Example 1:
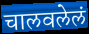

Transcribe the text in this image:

चालवलेलं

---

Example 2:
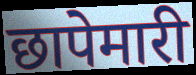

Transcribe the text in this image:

छापेमारी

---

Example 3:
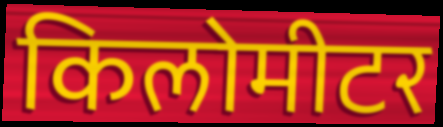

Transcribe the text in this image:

किलोमीटर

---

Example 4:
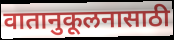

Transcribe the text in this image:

वातानुकूलनासाठी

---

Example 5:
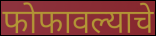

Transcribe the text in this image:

फोफावल्याचे